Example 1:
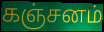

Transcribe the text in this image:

கஞ்சனம்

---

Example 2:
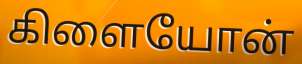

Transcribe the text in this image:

கிளையோன்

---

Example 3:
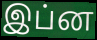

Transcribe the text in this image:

இப்ன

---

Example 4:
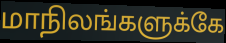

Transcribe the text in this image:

மாநிலங்களுக்கே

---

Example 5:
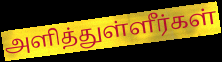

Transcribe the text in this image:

அளித்துள்ளீர்கள்